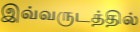
இவ்வருடத்தில்